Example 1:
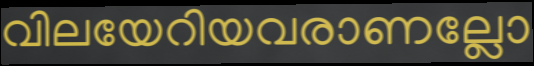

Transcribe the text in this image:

വിലയേറിയവരാണല്ലോ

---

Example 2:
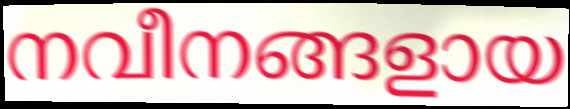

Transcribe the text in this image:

നവീനങ്ങളായ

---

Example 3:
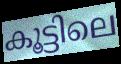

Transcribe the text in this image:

കൂട്ടിലെ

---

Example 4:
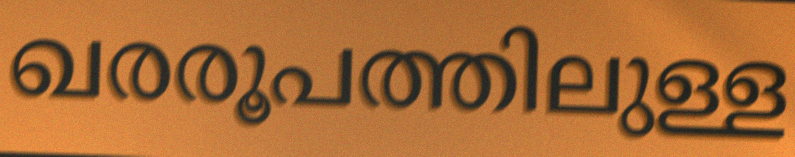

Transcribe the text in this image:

ഖരരൂപത്തിലുള്ള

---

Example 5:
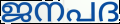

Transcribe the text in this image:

ജനപദ